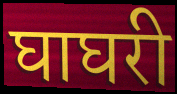
घाघरी